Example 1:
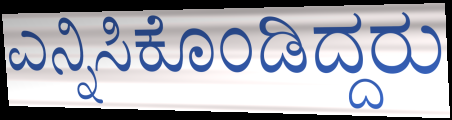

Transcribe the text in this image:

ಎನ್ನಿಸಿಕೊಂಡಿದ್ದರು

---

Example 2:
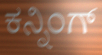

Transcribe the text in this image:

ಕನ್ನಿಂಗ್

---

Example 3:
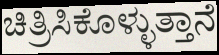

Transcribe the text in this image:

ಚಿತ್ರಿಸಿಕೊಳ್ಳುತ್ತಾನೆ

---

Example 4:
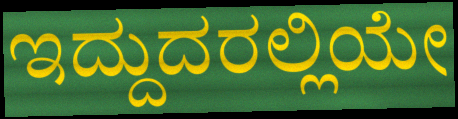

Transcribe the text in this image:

ಇದ್ದುದರಲ್ಲಿಯೇ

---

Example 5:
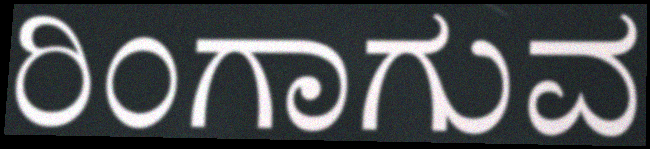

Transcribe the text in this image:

ರಿಂಗಾಗುವ